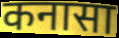
कनासा